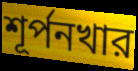
শূর্পনখার